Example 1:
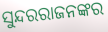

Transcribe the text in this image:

ସୁନ୍ଦରରାଜନଙ୍କର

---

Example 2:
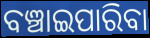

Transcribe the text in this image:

ବଞ୍ଚାଇପାରିବା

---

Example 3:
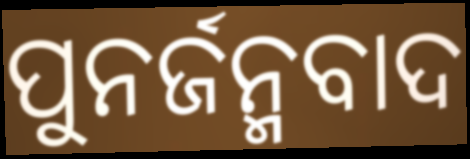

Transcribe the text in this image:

ପୁନର୍ଜନ୍ମବାଦ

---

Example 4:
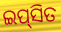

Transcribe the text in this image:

ଇପ୍‍ସିତ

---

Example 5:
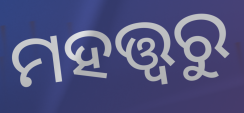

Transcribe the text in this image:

ମହତ୍ତ୍ୱରୁ